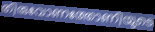
തിരുവോണത്തോണിയുടെ